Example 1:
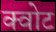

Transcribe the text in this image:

क्वोट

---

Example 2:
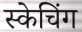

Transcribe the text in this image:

स्केचिंग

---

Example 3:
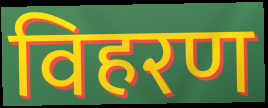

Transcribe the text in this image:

विहरण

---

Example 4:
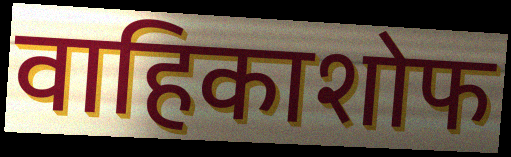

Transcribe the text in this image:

वाहिकाशोफ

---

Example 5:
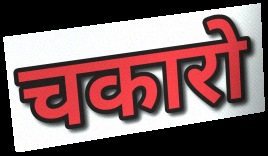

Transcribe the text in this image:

चकारो